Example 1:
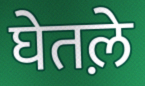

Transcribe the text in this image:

घेतल़े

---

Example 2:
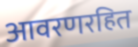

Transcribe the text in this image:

आवरणरहित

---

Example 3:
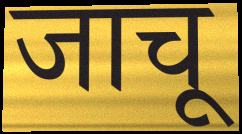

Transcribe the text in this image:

जाचू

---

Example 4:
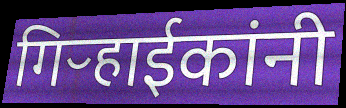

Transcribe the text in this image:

गिऱ्हाईकांनी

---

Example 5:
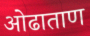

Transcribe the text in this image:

ओढाताण